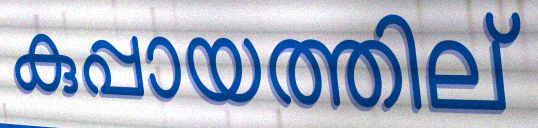
കുപ്പായത്തില്